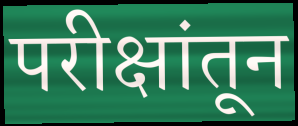
परीक्षांतून